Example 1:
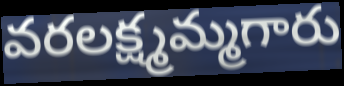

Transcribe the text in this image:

వరలక్ష్మమ్మగారు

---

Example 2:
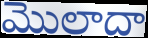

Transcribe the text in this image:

మొలాదా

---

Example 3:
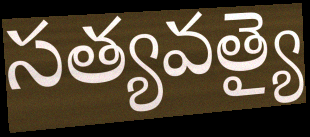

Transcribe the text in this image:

సత్యవత్యై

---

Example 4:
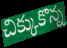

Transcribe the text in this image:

చిక్కుకొన్న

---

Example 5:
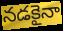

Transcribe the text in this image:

నడకైనా